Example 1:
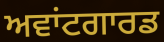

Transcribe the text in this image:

ਅਵਾਂਟਗਾਰਡ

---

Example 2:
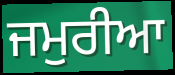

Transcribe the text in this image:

ਜਮੁਰੀਆ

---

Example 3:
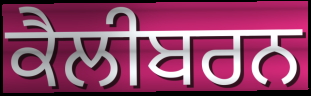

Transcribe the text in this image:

ਕੈਲੀਬਰਨ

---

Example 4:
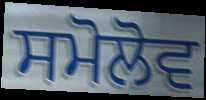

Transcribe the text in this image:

ਸਮੋਲੋਵ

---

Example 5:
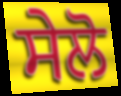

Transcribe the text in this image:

ਸੇਲੋ